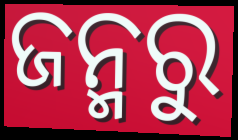
ଜନ୍ମରୁ